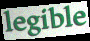
legible